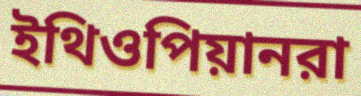
ইথিওপিয়ানরা